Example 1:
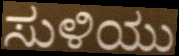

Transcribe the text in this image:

ಸುಳಿಯು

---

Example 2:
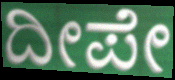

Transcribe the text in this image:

ದೀಪೇ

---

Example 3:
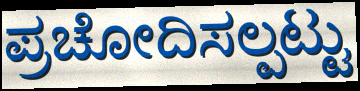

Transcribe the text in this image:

ಪ್ರಚೋದಿಸಲ್ಪಟ್ಟು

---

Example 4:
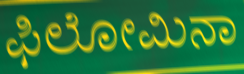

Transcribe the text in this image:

ಫಿಲೋಮಿನಾ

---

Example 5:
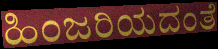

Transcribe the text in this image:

ಹಿಂಜರಿಯದಂತೆ